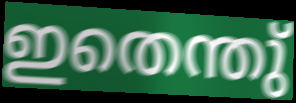
ഇതെന്തു്